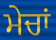
ਮੇਚਾਂ